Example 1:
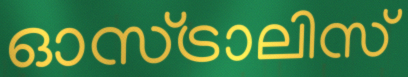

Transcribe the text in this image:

ഓസ്ട്രാലിസ്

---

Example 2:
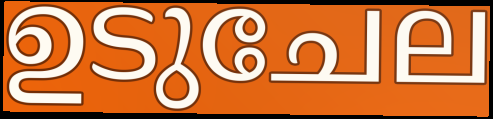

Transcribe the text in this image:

ഉടുചേല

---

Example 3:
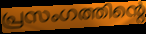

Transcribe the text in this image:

പ്രസംഗത്തിന്റെ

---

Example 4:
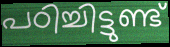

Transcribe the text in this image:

പഠിച്ചിട്ടുണ്ട്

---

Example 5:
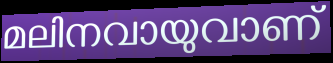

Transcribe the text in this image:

മലിനവായുവാണ്